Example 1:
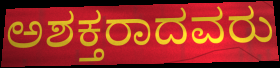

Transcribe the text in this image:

ಅಶಕ್ತರಾದವರು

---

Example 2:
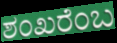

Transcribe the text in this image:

ಶಂಖರೆಂಬ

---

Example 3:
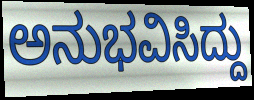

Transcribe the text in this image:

ಅನುಭವಿಸಿದ್ದು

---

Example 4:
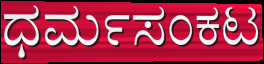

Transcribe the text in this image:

ಧರ್ಮಸಂಕಟ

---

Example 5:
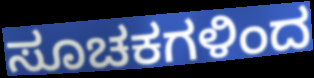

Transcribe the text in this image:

ಸೂಚಕಗಳಿಂದ